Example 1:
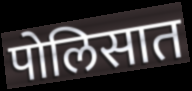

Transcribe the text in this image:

पोलिसात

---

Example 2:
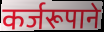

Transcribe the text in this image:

कर्जरूपाने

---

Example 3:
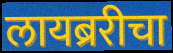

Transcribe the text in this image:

लायब्ररीचा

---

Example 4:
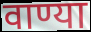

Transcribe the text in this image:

वाण्या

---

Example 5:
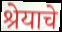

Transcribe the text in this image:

श्रेयाचे